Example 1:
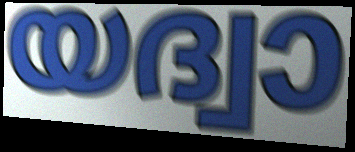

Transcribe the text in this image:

യദ്വാ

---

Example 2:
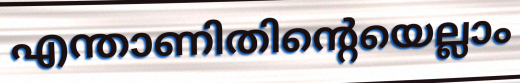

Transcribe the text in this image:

എന്താണിതിന്റെയെല്ലാം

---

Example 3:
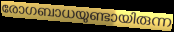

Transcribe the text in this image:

രോഗബാധയുണ്ടായിരുന്ന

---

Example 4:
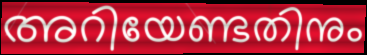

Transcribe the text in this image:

അറിയേണ്ടതിനും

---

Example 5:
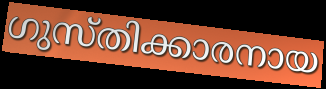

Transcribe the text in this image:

ഗുസ്തിക്കാരനായ